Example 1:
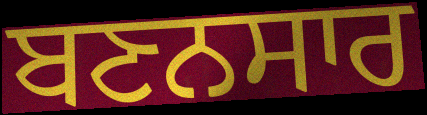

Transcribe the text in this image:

ਬਣਨਸਾਰ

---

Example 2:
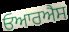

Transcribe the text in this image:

ਓਆਰਐਸ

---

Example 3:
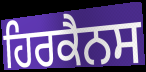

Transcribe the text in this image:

ਹਿਰਕੈਨਸ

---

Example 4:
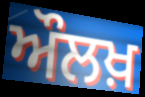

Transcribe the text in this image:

ਔਲਖ਼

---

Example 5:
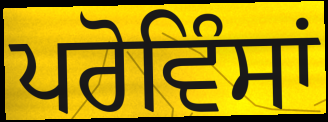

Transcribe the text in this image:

ਪਰੋਵਿੰਸਾਂ